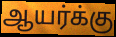
ஆயர்க்கு